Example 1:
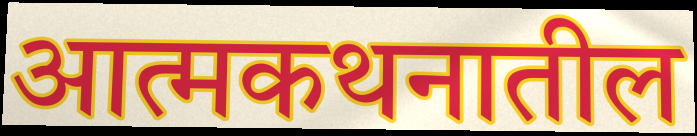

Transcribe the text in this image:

आत्मकथनातील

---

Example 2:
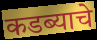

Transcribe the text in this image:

कडब्याचे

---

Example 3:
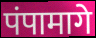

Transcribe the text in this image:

पंपामागे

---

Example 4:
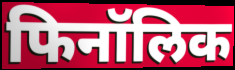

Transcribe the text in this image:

फिनॉलिक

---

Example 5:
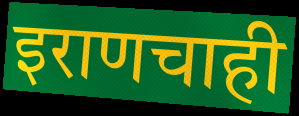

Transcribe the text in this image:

इराणचाही